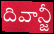
దివాన్జీ